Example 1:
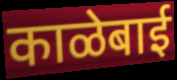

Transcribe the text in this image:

काळेबाई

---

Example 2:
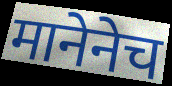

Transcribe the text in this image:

मानेनेच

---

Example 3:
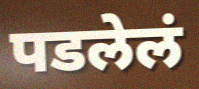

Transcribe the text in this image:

पडलेलं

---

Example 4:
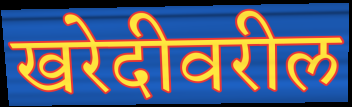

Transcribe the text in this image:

खरेदीवरील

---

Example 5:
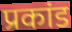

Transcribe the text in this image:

प्रकांड